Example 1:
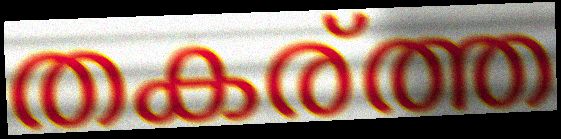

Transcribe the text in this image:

തകര്ത്ത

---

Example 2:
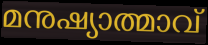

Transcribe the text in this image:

മനുഷ്യാത്മാവ്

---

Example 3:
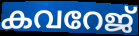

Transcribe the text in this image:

കവറേജ്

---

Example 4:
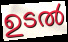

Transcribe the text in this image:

ഉടൽ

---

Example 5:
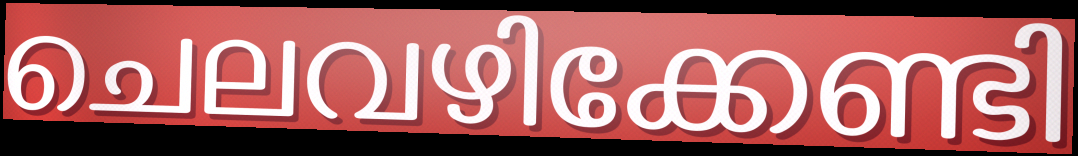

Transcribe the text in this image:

ചെലവഴിക്കേണ്ടി